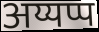
अय्यप्प